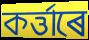
কৰ্ত্তাৰে